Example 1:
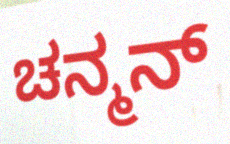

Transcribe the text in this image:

ಚನ್ಮನ್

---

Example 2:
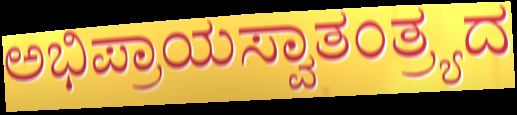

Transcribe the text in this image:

ಅಭಿಪ್ರಾಯಸ್ವಾತಂತ್ರ್ಯದ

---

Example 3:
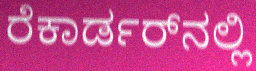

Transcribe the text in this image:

ರೆಕಾರ್ಡರ್‌ನಲ್ಲಿ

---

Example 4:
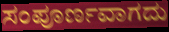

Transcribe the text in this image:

ಸಂಪೂರ್ಣವಾಗದು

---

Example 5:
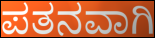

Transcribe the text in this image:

ಪತನವಾಗಿ